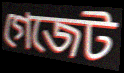
গেজেট